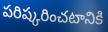
పరిష్కరించటానికి